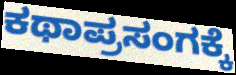
ಕಥಾಪ್ರಸಂಗಕ್ಕೆ